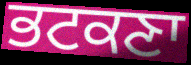
ਭਟਕਣਾ